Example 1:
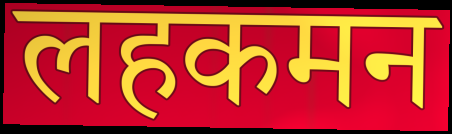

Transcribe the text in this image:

लहकमन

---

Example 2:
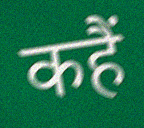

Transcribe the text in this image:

कहैं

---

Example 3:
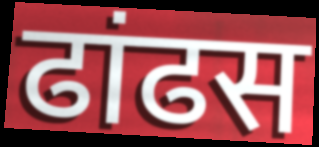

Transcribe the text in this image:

ढांढस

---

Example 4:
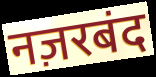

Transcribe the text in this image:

नज़रबंद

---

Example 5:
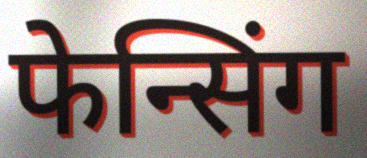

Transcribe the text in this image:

फेन्सिंग